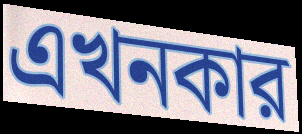
এখনকার